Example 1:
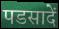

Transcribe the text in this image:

पडसादें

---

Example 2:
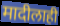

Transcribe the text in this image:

मादीलाही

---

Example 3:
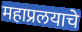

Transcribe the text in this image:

महाप्रलयाचे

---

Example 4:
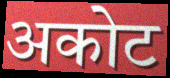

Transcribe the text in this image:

अकोट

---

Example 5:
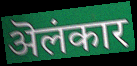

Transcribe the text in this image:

ऄलंकार